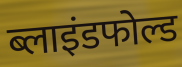
ब्लाइंडफोल्ड